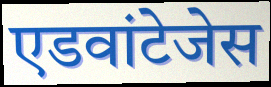
एडवांटेजेस